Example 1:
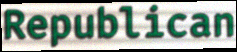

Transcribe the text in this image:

Republican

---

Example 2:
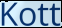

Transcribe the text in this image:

Kott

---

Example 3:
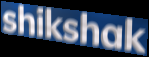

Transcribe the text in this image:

shikshak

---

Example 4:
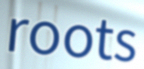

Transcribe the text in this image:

roots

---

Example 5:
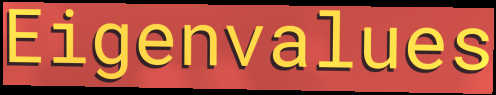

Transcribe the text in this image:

Eigenvalues